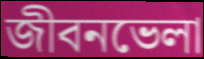
জীবনভেলা